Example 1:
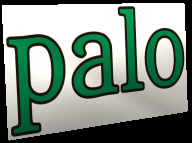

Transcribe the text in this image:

palo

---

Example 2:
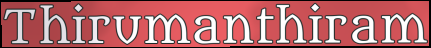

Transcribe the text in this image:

Thirumanthiram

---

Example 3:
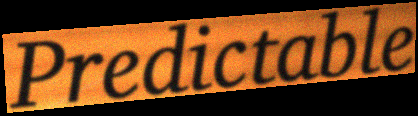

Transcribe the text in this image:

Predictable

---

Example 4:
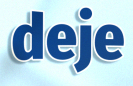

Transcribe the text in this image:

deje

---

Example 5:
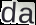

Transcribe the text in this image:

da